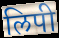
लिपी